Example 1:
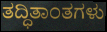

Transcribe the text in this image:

ತದ್ಧಿತಾಂತಗಳು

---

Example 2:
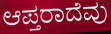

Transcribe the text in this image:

ಆಪ್ತರಾದೆವು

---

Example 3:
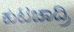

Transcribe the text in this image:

ಕುಟಚಾದ್ರಿ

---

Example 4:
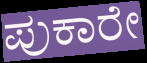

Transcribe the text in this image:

ಪುಕಾರೇ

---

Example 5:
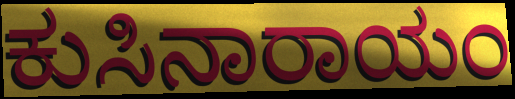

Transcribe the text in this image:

ಕುಸಿನಾರಾಯಂ